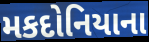
મકદોનિયાના